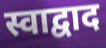
स्वाद्वाद